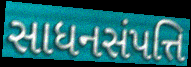
સાધનસંપત્તિ